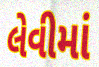
લેવીમાં